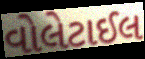
વોલેટાઈલ